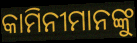
କାମିନୀମାନଙ୍କୁ